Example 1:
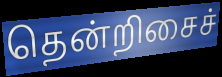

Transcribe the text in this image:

தென்றிசைச்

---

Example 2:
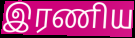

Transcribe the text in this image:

இரணிய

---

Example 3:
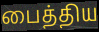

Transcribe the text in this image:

பைத்திய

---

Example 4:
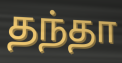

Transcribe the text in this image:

தந்தா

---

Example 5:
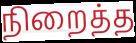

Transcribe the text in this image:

நிறைத்த